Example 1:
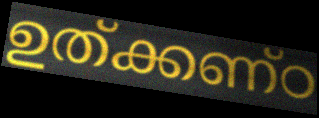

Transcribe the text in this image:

ഉത്ക്കണ്ഠ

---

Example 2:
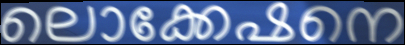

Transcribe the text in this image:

ലൊക്കേഷനെ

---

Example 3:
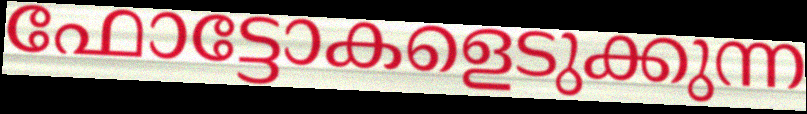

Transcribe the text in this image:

ഫോട്ടോകളെടുക്കുന്ന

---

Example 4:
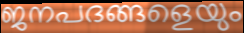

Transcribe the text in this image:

ജനപദങ്ങളെയും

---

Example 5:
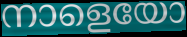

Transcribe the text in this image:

നാളെയോ